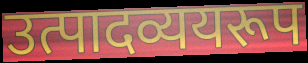
उत्पादव्ययरूप